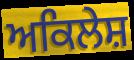
ਅਕਿਲੇਸ਼